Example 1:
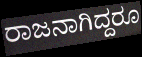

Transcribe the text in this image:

ರಾಜನಾಗಿದ್ದರೂ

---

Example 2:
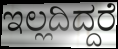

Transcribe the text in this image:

ಇಲ್ಲದಿದ್ದರೆ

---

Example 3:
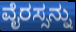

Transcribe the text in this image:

ವೈರಸ್ಸನ್ನು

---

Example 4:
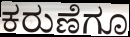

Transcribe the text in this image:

ಕರುಣೆಗೂ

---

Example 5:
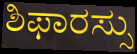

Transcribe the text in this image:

ಶಿಫಾರಸ್ಸು